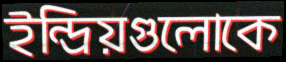
ইন্দ্রিয়গুলোকে